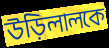
উড়িলালকে